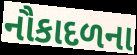
નૌકાદળના